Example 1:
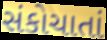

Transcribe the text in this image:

સંકોચાતાં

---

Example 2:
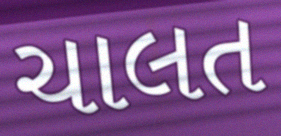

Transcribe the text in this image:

ચાલત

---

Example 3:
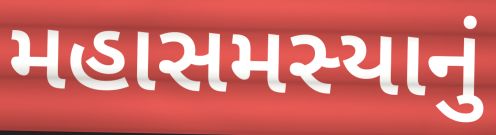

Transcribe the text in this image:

મહાસમસ્યાનું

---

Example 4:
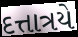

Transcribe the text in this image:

દત્તાત્રયે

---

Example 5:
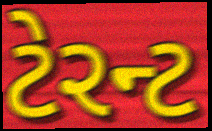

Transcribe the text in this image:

ટેરન્ટ